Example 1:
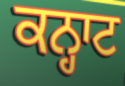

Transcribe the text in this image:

ਕਨ੍ਹਾਟ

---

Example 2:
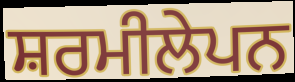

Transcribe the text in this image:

ਸ਼ਰਮੀਲੇਪਨ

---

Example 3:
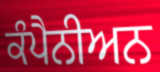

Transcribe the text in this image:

ਕੰਪੈਨੀਅਨ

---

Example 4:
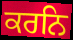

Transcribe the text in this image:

ਕਰਨਿ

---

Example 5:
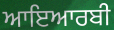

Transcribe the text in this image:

ਆਇਆਰਬੀ